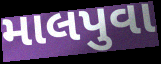
માલપુવા